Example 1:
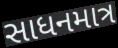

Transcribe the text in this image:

સાધનમાત્ર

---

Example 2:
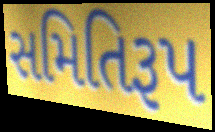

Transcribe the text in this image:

સમિતિરૂપ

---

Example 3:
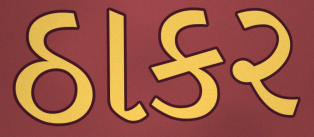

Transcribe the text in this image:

ઠાકર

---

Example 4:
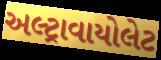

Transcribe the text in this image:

અલ્ટ્રાવાયોલેટ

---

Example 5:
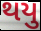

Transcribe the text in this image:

થયુ